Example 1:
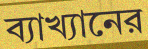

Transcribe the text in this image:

ব্যাখ্যানের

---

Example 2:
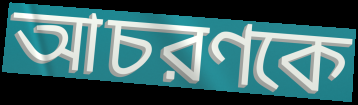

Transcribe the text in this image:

আচরণকে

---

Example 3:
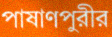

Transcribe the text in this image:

পাষাণপুরীর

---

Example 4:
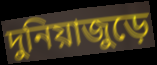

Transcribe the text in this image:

দুনিয়াজুড়ে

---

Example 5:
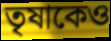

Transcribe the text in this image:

তৃষাকেও